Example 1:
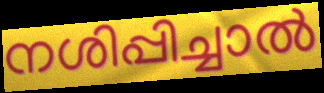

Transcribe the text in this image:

നശിപ്പിച്ചാൽ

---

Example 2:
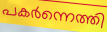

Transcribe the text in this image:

പകർന്നെത്തി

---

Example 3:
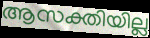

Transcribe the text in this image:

ആസക്തിയില്ല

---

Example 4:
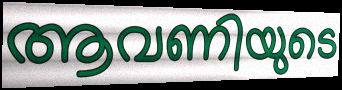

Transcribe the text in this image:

ആവണിയുടെ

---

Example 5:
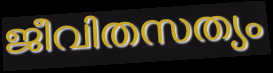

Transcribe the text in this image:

ജീവിതസത്യം